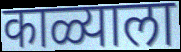
काळ्याला